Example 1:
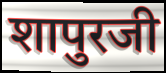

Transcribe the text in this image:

शापुरजी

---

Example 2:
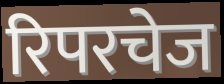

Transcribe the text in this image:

रिपरचेज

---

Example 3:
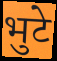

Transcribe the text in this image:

भुटे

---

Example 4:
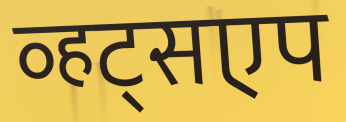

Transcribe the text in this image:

व्हट्सएप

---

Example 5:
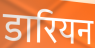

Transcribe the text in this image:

डारियन